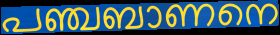
പഞ്ചബാണനെ